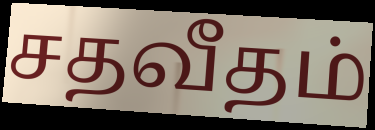
சதவீதம்